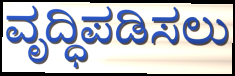
ವೃದ್ಧಿಪಡಿಸಲು